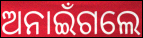
ଅନାଇଁଗଲେ